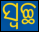
ସ୍ୱଚ୍ଛ